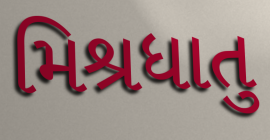
મિશ્રધાતુ